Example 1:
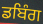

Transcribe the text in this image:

ਡਬਿੰਗ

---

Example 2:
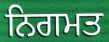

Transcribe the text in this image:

ਨਿਗਮਤ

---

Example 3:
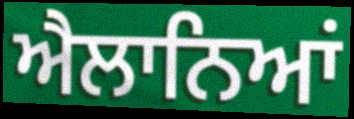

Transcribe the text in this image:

ਐਲਾਨਿਆਂ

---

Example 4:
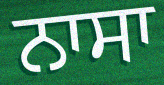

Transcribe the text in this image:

ਨਾਸਾ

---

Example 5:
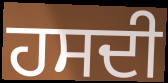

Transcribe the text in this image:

ਹਸਦੀ